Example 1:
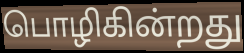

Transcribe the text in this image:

பொழிகின்றது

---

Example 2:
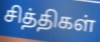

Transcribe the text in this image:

சித்திகள்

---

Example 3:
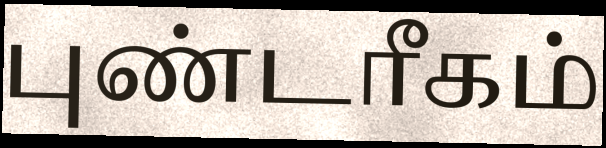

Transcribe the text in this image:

புண்டரீகம்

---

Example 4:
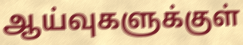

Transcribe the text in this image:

ஆய்வுகளுக்குள்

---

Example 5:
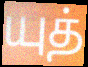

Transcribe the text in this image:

யுத்